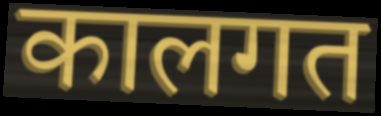
कालगत